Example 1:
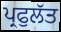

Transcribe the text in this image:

ਪ੍ਰਫੁਲੱਤ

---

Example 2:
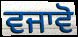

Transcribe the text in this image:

ਵਜਾਵੋ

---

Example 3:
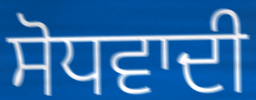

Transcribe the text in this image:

ਸੋਧਵਾਦੀ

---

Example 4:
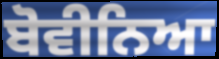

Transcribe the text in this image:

ਬੋਵੀਨਿਆ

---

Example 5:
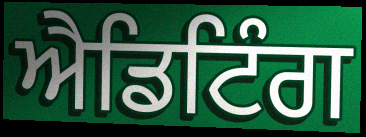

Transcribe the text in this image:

ਐਡਿਟਿੰਗ